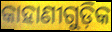
କାହାଣୀଗୁଡ଼ିକ